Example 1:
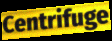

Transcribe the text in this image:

Centrifuge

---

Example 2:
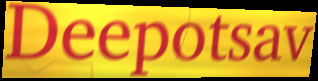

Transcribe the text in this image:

Deepotsav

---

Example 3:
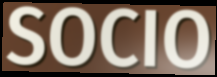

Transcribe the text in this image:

SOCIO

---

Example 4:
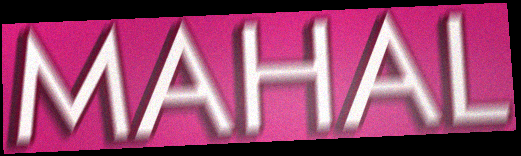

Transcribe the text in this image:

MAHAL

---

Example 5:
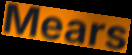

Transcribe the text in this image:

Mears